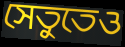
সেতুতেও